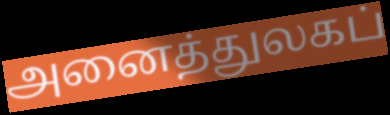
அனைத்துலகப்